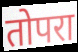
तोपरा